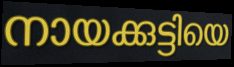
നായക്കുട്ടിയെ